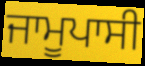
ਜਾਮੂਪਾਸੀ